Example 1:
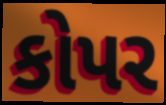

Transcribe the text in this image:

કોપર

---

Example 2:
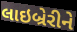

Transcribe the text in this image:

લાઇબ્રેરીને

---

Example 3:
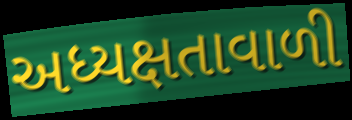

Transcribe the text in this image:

અધ્યક્ષતાવાળી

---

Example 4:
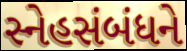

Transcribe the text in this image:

સ્નેહસંબંધને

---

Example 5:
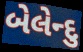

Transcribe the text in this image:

બેલેન્દુ